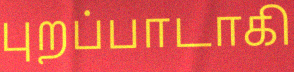
புறப்பாடாகி